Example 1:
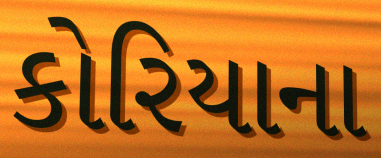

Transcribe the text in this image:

કોરિયાના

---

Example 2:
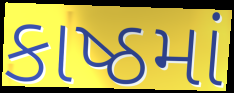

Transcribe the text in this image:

કાષ્ઠમાં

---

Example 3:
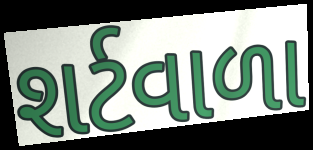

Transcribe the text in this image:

શર્ટવાળા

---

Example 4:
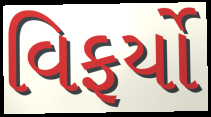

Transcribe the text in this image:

વિફર્યો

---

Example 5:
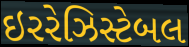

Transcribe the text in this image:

ઇરરેઝિસ્ટેબલ